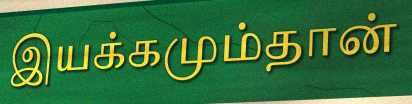
இயக்கமும்தான்